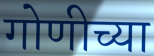
गोणीच्या